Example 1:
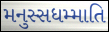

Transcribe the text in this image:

મનુસ્સધમ્માતિ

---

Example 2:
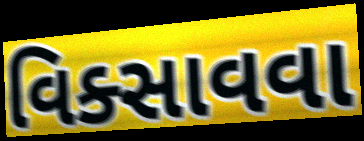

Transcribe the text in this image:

વિક્સાવવા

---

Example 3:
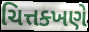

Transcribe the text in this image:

ચિત્તક્ખણે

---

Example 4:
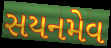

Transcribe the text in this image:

સયનમેવ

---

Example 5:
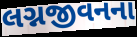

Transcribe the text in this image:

લગ્નજીવનના